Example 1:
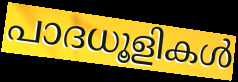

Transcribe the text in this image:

പാദധൂളികൾ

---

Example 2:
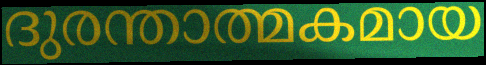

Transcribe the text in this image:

ദുരന്താത്മകമായ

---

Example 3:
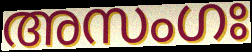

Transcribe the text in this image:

അസംഗഃ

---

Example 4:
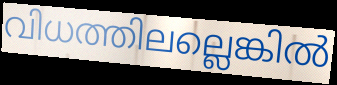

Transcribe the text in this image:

വിധത്തിലല്ലെങ്കിൽ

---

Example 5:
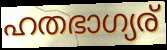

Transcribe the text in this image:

ഹതഭാഗ്യര്